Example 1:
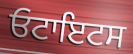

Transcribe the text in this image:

ਓਟਾਇਟਸ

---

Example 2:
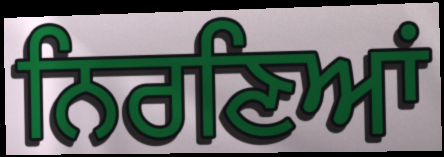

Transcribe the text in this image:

ਨਿਰਣਿਆਂ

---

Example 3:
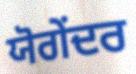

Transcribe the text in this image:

ਯੋਗੇਂਦਰ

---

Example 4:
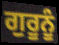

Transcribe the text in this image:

ਗੁਰੂਨੂੰ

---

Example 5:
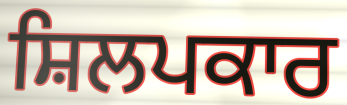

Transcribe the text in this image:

ਸ਼ਿਲਪਕਾਰ